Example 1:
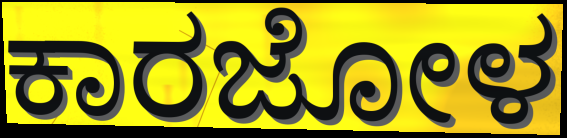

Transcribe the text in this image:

ಕಾರಜೋಳ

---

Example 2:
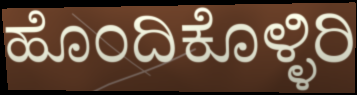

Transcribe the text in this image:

ಹೊಂದಿಕೊಳ್ಳಿರಿ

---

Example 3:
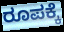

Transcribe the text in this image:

ರೂಪಕ್ಕೆ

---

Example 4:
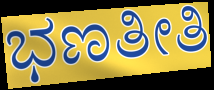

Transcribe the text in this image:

ಭಣತೀತಿ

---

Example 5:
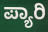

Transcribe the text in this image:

ಪ್ಯಾರಿ